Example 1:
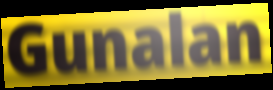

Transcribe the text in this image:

Gunalan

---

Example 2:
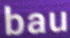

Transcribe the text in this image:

bau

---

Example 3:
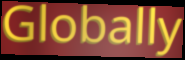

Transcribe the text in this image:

Globally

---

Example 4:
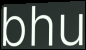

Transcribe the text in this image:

bhu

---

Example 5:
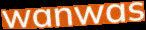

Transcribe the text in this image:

wanwas